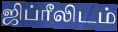
ஜிப்ரீலிடம்